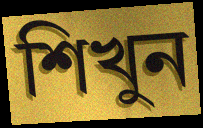
শিখুন